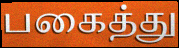
பகைத்து